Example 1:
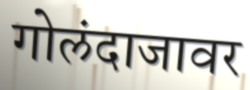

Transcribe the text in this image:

गोलंदाजावर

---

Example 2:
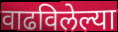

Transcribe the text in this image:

वाढविलेल्या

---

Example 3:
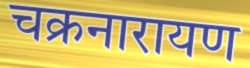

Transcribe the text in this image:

चक्रनारायण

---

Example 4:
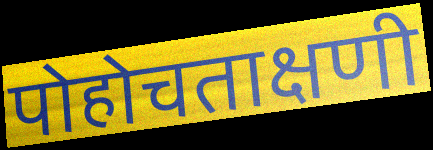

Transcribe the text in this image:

पोहोचताक्षणी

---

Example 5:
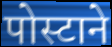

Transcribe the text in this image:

पोस्टाने